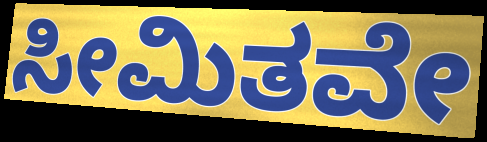
ಸೀಮಿತವೇ